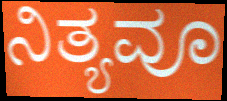
ನಿತ್ಯವೂ